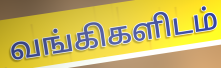
வங்கிகளிடம்